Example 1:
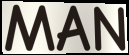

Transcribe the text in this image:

MAN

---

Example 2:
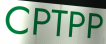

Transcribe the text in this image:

CPTPP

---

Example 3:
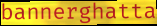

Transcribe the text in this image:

bannerghatta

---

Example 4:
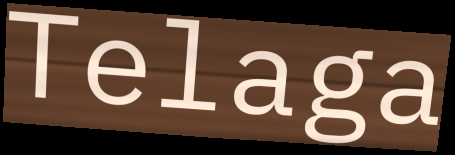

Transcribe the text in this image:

Telaga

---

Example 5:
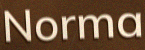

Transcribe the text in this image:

Norma